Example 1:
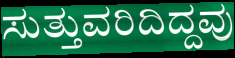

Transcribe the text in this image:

ಸುತ್ತುವರಿದಿದ್ದವು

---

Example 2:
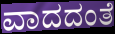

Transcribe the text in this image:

ವಾದದಂತೆ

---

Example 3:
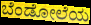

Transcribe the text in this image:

ಬೆಂಡೋಲೆಯ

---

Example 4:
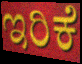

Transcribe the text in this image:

ಇರಿಕೆ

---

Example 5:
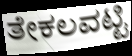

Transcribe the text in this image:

ತೇಕಲವಟ್ಟಿ